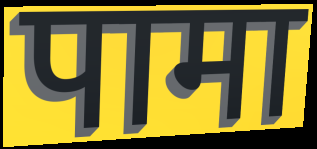
पामा